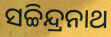
ସଚ୍ଚିନ୍ଦ୍ରନାଥ